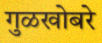
गुळखोबरे